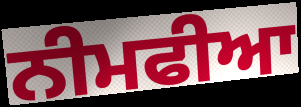
ਨੀਮਫੀਆ